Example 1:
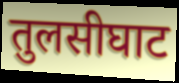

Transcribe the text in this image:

तुलसीघाट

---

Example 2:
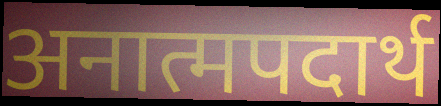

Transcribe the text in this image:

अनात्मपदार्थ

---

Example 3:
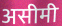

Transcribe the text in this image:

असीमी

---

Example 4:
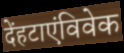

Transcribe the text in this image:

देंहटाएंविवेक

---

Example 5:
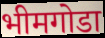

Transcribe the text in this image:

भीमगोडा